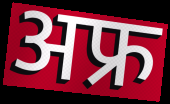
अफ्र